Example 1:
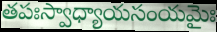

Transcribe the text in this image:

తపఃస్వాధ్యాయసంయమైః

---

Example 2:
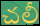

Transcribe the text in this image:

చలీ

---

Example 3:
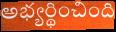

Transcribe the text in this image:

అభ్యర్థించింది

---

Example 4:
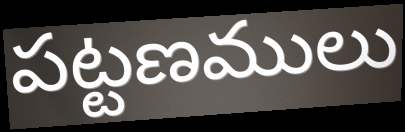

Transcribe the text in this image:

పట్టణములు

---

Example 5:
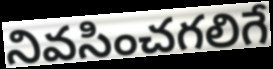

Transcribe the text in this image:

నివసించగలిగే